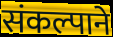
संकल्पाने